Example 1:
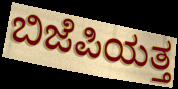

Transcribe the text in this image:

ಬಿಜೆಪಿಯತ್ತ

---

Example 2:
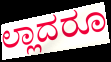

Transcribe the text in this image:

ಲ್ಲಾದರೂ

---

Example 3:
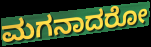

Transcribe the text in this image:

ಮಗನಾದರೋ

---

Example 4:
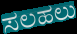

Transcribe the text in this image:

ಸಲಹಲು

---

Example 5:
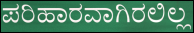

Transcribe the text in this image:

ಪರಿಹಾರವಾಗಿರಲಿಲ್ಲ